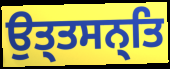
ਉਤ੍ਤਸਨ੍ਤਿ